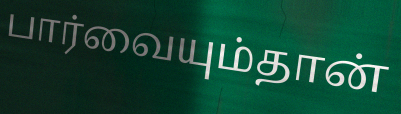
பார்வையும்தான்